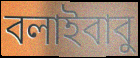
বলাইবাবু